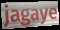
jagaye